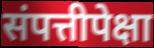
संपत्तीपेक्षा